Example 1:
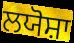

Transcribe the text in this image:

ਲਯੋਸ਼ਾ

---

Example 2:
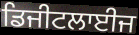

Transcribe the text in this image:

ਡਿਜੀਟਲਾਈਜ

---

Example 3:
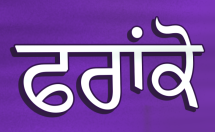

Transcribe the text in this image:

ਫਰਾਂਕੋ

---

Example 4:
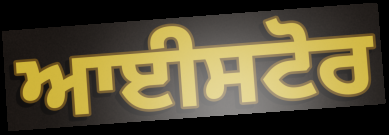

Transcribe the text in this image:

ਆਈਸਟੋਰ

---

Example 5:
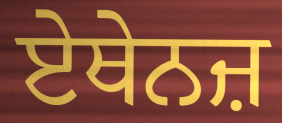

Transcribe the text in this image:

ਏਥੇਨਜ਼